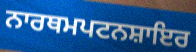
ਨਾਰਥਮਪਟਨਸ਼ਾਇਰ